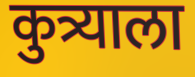
कुत्र्याला